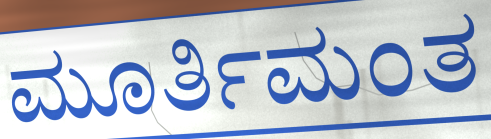
ಮೂರ್ತಿಮಂತ